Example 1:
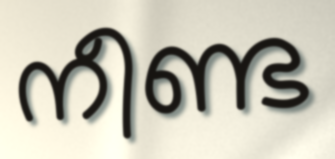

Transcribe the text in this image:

നീണ്ട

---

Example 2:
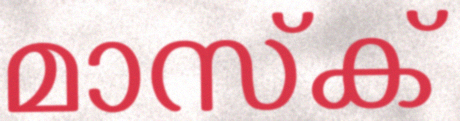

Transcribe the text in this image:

മാസ്‌ക്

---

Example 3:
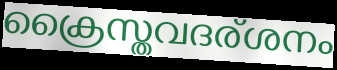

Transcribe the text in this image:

ക്രൈസ്തവദര്ശനം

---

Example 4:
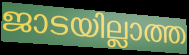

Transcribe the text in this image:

ജാടയില്ലാത്ത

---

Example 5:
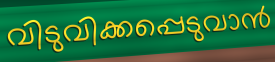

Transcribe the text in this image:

വിടുവിക്കപ്പെടുവാൻ